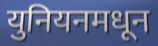
युनियनमधून